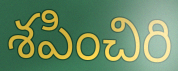
శపించిరి